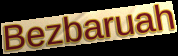
Bezbaruah